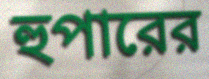
হুপারের